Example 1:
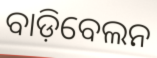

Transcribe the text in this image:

ବାଡ଼ିବେଲନ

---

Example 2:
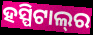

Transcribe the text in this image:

ହସ୍ପିଟାଲ୍‌ର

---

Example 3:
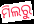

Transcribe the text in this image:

ମିଲରୁ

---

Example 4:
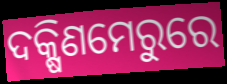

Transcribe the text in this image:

ଦକ୍ଷିଣମେରୁରେ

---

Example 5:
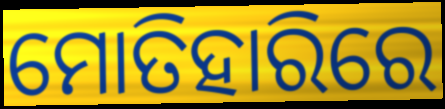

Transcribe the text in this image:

ମୋତିହାରିରେ